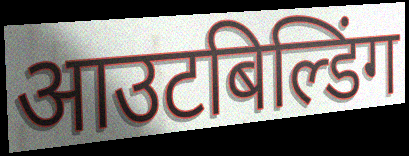
आउटबिल्डिंग